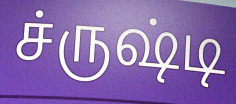
ச்ருஷ்டி